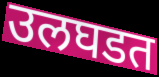
उलघडत